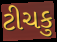
ટીચકુ